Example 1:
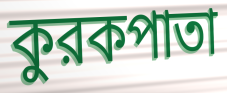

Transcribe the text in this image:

কুরকপাতা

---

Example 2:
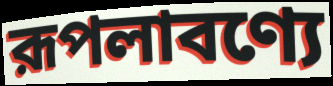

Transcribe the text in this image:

রূপলাবণ্যে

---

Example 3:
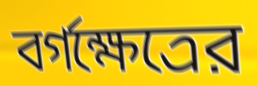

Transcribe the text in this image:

বর্গক্ষেত্রের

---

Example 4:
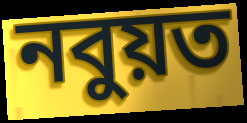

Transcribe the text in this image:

নবুয়ত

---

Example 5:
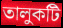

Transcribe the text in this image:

তালুকটি